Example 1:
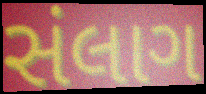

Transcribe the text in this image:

સંલાગ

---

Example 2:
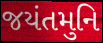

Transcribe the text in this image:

જયંતમુનિ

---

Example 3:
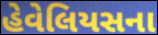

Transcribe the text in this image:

હેવેલિયસના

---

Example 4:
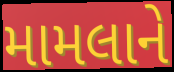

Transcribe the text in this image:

મામલાને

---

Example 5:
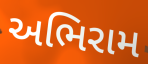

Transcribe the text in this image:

અભિરામ